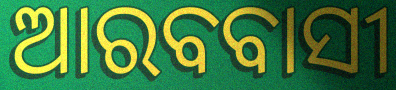
ଆରବବାସୀ